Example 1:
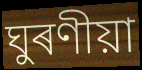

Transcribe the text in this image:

ঘুৰণীয়া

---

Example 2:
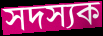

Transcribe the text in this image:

সদস্যক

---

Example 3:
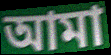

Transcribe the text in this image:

আমা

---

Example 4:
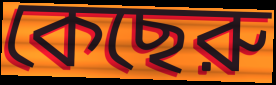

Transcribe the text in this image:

কেছেৰু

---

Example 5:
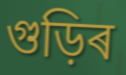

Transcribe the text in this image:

গুড়িৰ